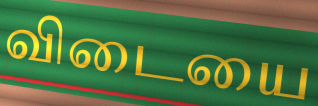
விடையை